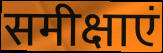
समीक्षाएं